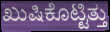
ಖುಷಿಕೊಟ್ಟಿತ್ತು